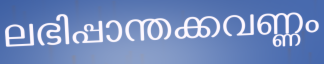
ലഭിപ്പാന്തക്കവണ്ണം